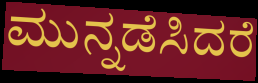
ಮುನ್ನಡೆಸಿದರೆ